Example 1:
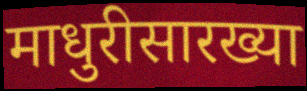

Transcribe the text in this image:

माधुरीसारख्या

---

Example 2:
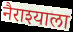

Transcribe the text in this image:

नैराश्याला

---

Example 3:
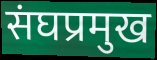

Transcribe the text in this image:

संघप्रमुख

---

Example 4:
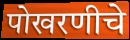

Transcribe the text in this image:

पोखरणीचे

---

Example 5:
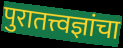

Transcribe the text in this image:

पुरातत्त्वज्ञांचा